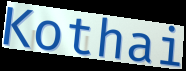
Kothai